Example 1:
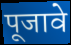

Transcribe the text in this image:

पूजावे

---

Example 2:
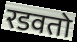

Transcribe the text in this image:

रडवतो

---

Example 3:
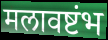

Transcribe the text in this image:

मलावष्टंभ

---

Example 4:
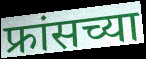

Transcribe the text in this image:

फ्रांसच्या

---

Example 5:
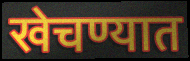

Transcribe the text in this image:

खेचण्यात